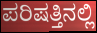
ಪರಿಷತ್ತಿನಲ್ಲಿ